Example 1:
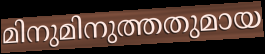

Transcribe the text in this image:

മിനുമിനുത്തതുമായ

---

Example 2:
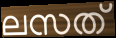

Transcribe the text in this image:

ലസത്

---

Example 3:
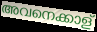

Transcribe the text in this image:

അവനെക്കാള്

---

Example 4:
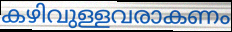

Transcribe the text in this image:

കഴിവുള്ളവരാകണം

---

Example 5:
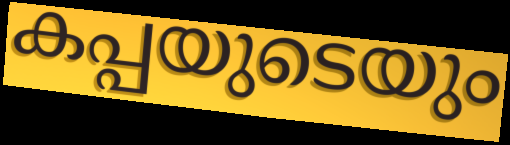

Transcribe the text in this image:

കപ്പയുടെയും